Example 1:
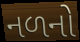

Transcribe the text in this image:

નળનો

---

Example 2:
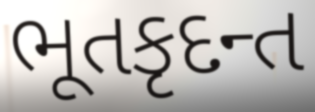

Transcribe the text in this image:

ભૂતકૃદન્ત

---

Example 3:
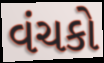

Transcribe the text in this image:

વંચકો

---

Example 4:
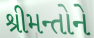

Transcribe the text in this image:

શ્રીમન્તોને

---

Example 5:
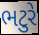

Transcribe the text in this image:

ભટુરે